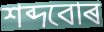
শব্দবোৰ